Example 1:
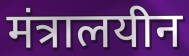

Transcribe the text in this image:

मंत्रालयीन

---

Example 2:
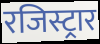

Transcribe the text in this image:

रजिस्ट्रार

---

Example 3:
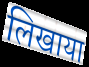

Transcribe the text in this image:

लिखाया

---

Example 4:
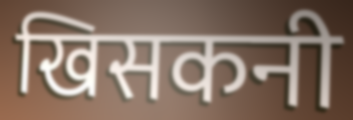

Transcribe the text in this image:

खिसकनी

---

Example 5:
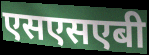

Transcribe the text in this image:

एसएसएबी